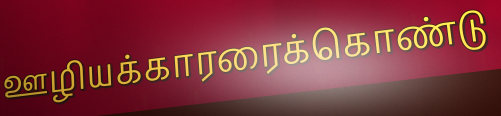
ஊழியக்காரரைக்கொண்டு